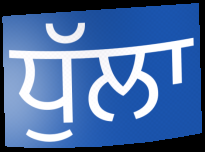
ਧੁੱਲਾ